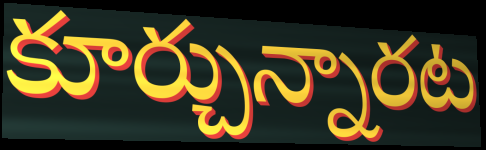
కూర్చున్నారట